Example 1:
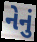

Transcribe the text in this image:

નેનું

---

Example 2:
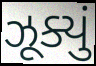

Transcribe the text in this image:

ઝૂક્યું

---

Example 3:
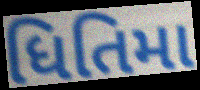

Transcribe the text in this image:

ધિતિમા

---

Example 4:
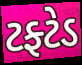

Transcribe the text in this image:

ટફ્ટેડ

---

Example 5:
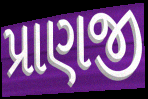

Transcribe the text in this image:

પ્રાણજી